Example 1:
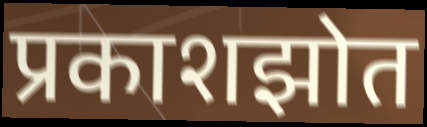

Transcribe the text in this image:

प्रकाशझोत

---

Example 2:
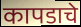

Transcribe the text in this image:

कापडाचे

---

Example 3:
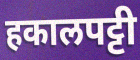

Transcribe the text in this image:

हकालपट्टी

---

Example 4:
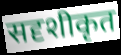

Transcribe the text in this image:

सदृशीकृत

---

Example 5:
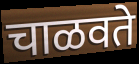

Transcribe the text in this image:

चाळवते